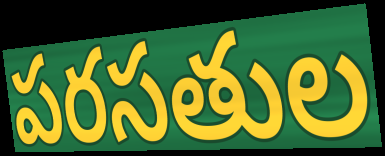
పరసతుల